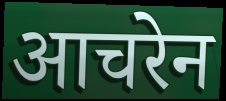
आचरेन